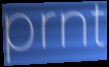
prnt